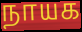
நாயக